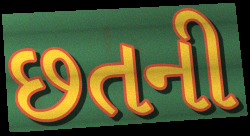
છતની